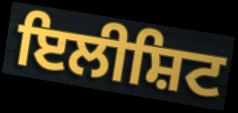
ਇਲੀਸ਼ਿਟ